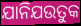
ଯାନିଯଉତୁକ